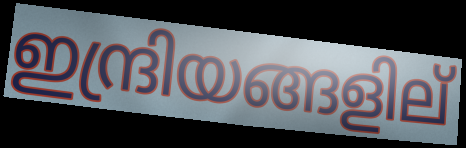
ഇന്ദ്രിയങ്ങളില്